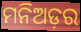
ମନିଅଡ଼ର